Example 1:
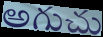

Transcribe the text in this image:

అగుచు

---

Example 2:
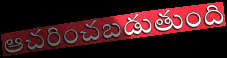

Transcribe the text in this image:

ఆచరించబడుతుంది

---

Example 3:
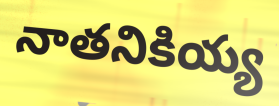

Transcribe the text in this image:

నాతనికియ్య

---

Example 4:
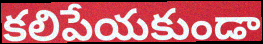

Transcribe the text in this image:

కలిపేయకుండా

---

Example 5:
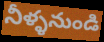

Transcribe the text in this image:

నీళ్ళనుండి